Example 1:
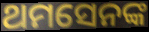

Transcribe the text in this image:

ଥମସେନଙ୍କ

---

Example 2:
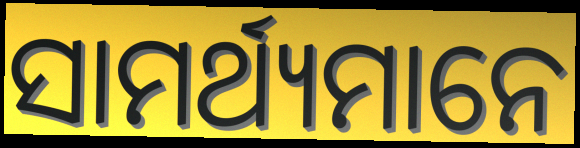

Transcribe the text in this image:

ସାମର୍ଥ୍ୟମାନେ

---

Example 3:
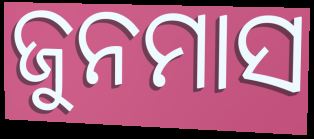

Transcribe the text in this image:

ଜୁନମାସ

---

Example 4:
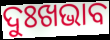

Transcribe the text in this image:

ଦୁଃଖଭାବ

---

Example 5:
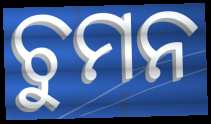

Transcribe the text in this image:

ଚୁମନ